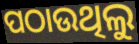
ପଠାଉଥିଲୁ